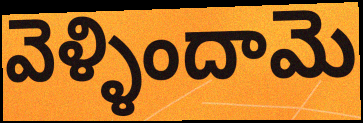
వెళ్ళిందామె